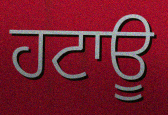
ਹਟਾਊ